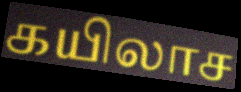
கயிலாச